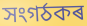
সংগঠকৰ